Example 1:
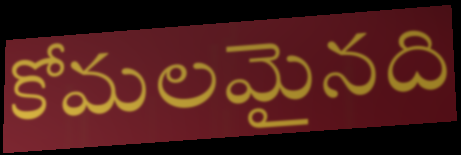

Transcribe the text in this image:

కోమలమైనది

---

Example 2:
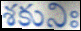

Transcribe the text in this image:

శకునిః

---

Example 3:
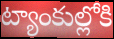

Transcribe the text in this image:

ట్యాంకుల్లోకి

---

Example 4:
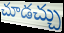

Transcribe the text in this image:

చూడచ్చు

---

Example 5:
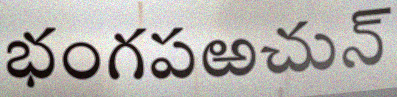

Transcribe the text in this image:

భంగపఱచున్